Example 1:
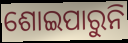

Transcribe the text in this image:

ଶୋଇପାରୁନି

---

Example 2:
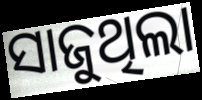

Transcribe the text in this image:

ସାଜୁଥିଲା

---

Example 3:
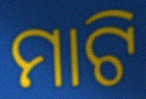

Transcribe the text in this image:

ମାଟି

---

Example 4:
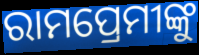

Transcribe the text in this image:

ରାମପ୍ରେମୀଙ୍କୁ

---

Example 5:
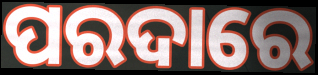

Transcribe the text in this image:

ପରଦାରେ